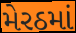
મેરઠમાં